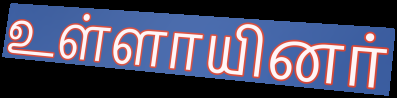
உள்ளாயினர்